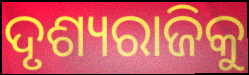
ଦୃଶ୍ୟରାଜିକୁ